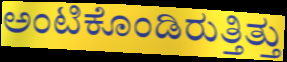
ಅಂಟಿಕೊಂಡಿರುತ್ತಿತ್ತು